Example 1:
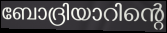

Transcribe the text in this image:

ബോദ്രിയാറിന്റെ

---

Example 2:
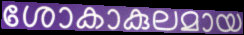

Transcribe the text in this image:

ശോകാകുലമായ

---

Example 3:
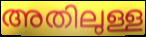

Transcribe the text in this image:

അതിലുള്ള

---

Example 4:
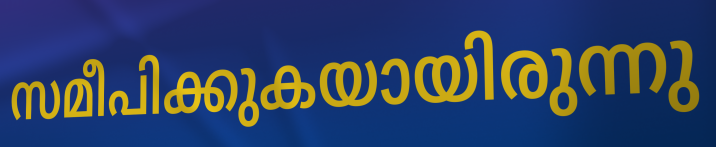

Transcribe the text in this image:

സമീപിക്കുകയായിരുന്നു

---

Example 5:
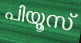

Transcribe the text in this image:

പിയൂസ്